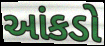
આંકડો